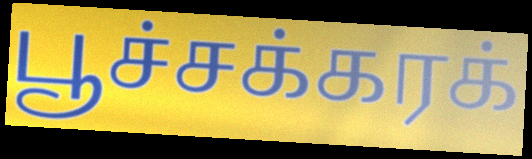
பூச்சக்கரக்